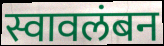
स्वावलंबन